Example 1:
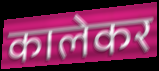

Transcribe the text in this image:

कालेकर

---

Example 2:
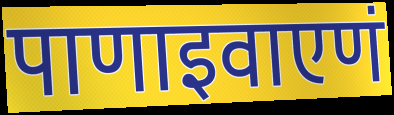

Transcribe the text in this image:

पाणाइवाएणं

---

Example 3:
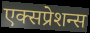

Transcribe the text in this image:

एक्सप्रेशन्स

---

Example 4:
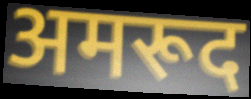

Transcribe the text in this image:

अमरूद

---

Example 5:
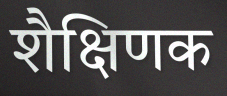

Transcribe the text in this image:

शैक्षिणक